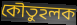
কৌতুহলক